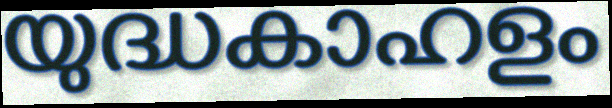
യുദ്ധകാഹളം